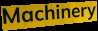
Machinery